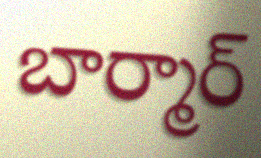
బార్మార్